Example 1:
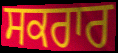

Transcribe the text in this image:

ਸਕਰਾਰ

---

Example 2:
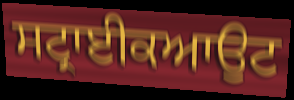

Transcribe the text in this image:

ਸਟ੍ਰਾਈਕਆਉਟ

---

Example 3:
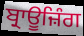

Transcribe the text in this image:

ਬ੍ਰਾਊਜ਼ਿੰਗ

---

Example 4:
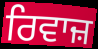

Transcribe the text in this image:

ਰਿਵਾਜ਼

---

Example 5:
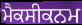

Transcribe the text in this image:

ਮੈਕਸੀਕਨਮ